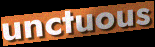
unctuous